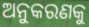
ଅନୁକରଣକୁ